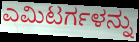
ಎಮಿಟರ್ಗಳನ್ನು